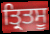
ਤ੍ਰਿਤਸੂ